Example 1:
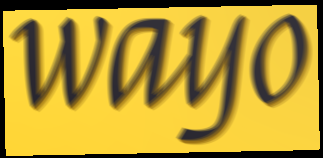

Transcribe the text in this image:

wayo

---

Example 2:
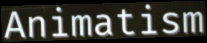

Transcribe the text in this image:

Animatism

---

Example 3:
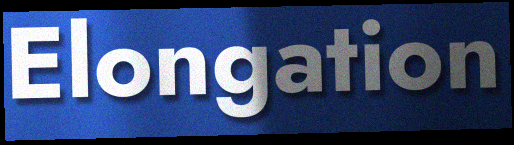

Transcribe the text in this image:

Elongation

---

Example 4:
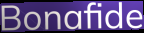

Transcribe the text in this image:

Bonafide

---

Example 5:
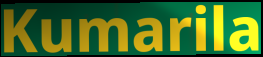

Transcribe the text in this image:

Kumarila